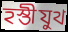
হস্তীযুথ